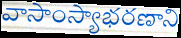
వాసాంస్యాభరణాని